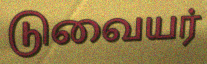
டுவையர்